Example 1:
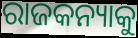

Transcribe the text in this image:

ରାଜକନ୍ୟାକୁ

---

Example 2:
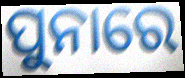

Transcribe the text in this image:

ପୁନାରେ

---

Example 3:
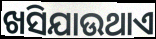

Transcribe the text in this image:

ଖସିଯାଉଥାଏ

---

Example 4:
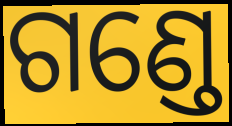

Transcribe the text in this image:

ଗଣ୍ଡେ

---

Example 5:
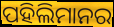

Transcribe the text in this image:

ପହିଲିମାନର